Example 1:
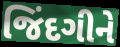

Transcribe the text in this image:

જિંદગીને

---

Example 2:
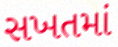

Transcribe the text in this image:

સખતમાં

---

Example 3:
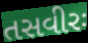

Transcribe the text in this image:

તસવીરઃ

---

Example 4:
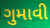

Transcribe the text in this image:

ગુમાવી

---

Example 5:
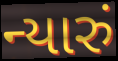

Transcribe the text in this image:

ન્યારું